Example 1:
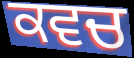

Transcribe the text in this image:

ਕਵਚ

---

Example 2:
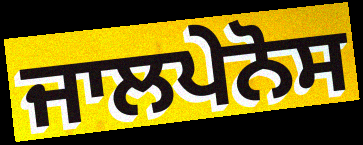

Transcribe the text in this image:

ਜਾਲਪੇਨੋਸ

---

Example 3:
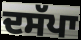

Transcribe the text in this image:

ਦਸੱਪਾ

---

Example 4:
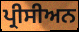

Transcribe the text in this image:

ਪ੍ਰੀਸੀਅਨ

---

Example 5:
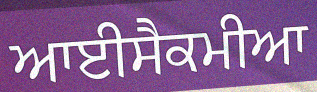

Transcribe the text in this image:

ਆਈਸੈਕਮੀਆ